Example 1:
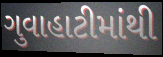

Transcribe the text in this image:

ગુવાહાટીમાંથી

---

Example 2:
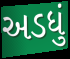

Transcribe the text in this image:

અડધું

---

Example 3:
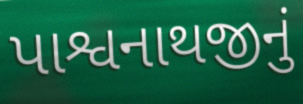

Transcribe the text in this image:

પાશ્વનાથજીનું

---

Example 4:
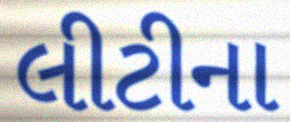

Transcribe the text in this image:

લીટીના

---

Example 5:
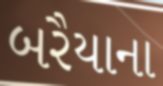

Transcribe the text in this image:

બરૈયાના